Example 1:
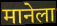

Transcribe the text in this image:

मानेला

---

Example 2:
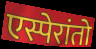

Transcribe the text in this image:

एस्पेरांतो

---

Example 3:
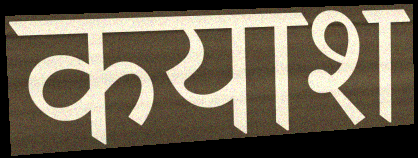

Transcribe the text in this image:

कयाश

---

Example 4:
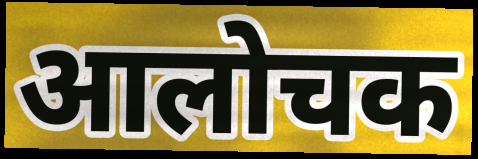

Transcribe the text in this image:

आलोचक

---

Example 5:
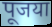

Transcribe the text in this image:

पूजया